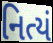
નિત્યં